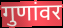
गुणांवर